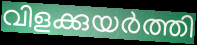
വിളക്കുയർത്തി